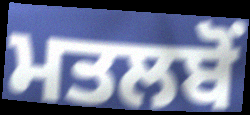
ਮਤਲਬੋਂ